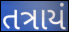
તત્રાયં